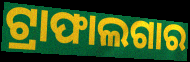
ଟ୍ରାଫାଲଗାର